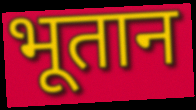
भूतान